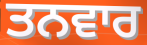
ਤਨਵਾਰ